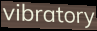
vibratory